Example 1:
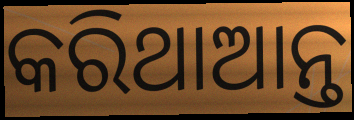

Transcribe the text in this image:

କରିଥାଆନ୍ତ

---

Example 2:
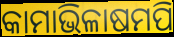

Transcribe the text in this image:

କାମାଭିଳାଷମପି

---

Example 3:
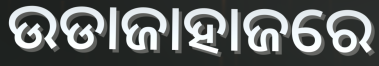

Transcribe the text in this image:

ଉଡାଜାହାଜରେ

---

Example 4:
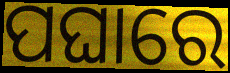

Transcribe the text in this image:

ପଘାରେ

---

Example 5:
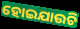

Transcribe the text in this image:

ହୋଇଯାଉଚି